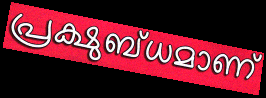
പ്രക്ഷുബ്ധമാണ്